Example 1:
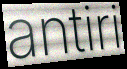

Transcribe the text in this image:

antiri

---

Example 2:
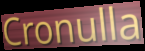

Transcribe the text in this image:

Cronulla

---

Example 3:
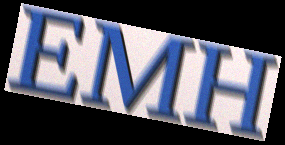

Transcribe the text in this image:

EMH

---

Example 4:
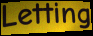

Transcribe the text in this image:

Letting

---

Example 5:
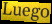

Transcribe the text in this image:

Luego